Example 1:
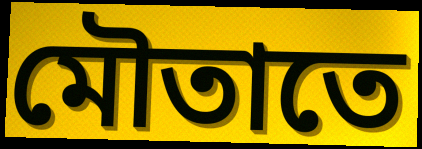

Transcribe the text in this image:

মৌতাতে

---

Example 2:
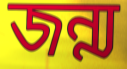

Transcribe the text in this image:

জন্ম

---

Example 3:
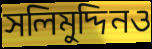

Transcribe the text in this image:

সলিমুদ্দিনও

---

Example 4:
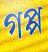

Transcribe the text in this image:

গপ্প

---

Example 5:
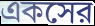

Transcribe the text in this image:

একসের